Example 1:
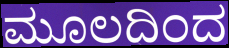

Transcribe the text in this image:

ಮೂಲದಿಂದ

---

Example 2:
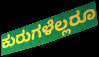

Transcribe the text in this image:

ಕುರುಗಳೆಲ್ಲರೂ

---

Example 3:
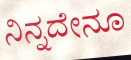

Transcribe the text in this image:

ನಿನ್ನದೇನೂ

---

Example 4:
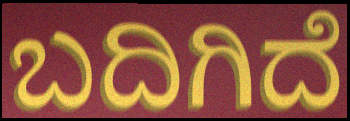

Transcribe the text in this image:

ಬದಿಗಿದೆ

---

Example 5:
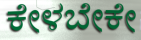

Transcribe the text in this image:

ಕೇಳಬೇಕೇ